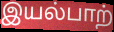
இயல்பாற்